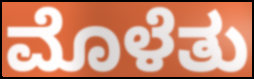
ಮೊಳೆತು